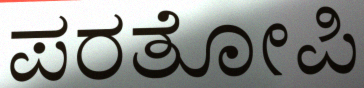
ಪರತೋಪಿ